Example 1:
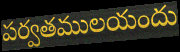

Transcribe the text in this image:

పర్వతములయందు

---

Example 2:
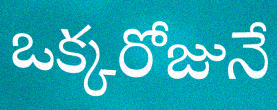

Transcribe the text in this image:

ఒక్కరోజునే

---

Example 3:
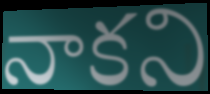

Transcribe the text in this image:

నాకని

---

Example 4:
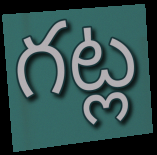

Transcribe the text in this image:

గట్ల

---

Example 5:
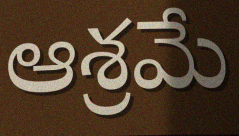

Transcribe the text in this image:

ఆశ్రమే